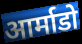
आर्माडो